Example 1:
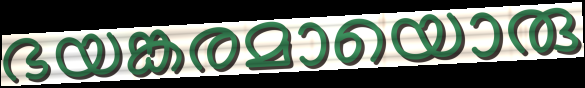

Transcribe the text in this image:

ഭയങ്കരമായൊരു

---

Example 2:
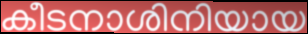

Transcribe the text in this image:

കീടനാശിനിയായ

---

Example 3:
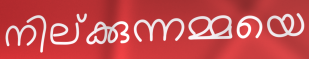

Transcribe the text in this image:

നില്ക്കുന്നമ്മയെ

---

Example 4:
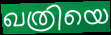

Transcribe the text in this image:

ഖത്രിയെ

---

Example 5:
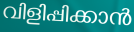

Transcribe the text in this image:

വിളിപ്പിക്കാൻ